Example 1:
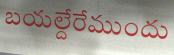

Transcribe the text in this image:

బయల్దేరేముందు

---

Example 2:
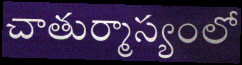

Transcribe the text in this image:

చాతుర్మాస్యంలో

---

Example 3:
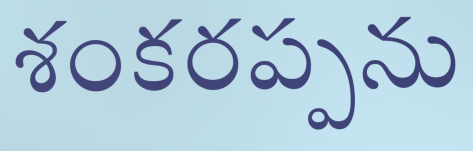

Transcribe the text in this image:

శంకరప్పను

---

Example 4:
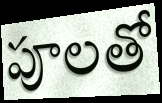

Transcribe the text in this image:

పూలతో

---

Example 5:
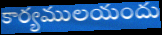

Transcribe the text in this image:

కార్యములయందు